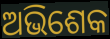
ଅଭିଶେକ